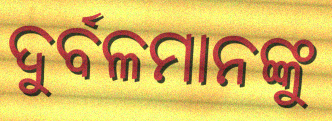
ଦୁର୍ବଳମାନଙ୍କୁ